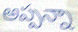
అప్పన్నా